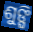
ଶୁଙ୍ଘି